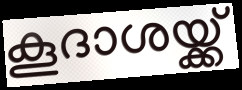
കൂദാശയ്ക്ക്